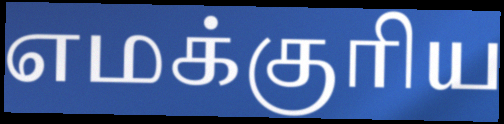
எமக்குரிய